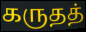
கருதத்